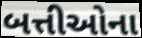
બત્તીઓના